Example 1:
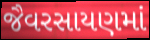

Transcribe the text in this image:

જૈવરસાયણમાં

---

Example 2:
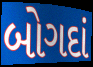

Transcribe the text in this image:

બોગદાં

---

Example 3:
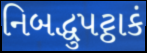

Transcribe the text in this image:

નિબદ્ધુપટ્ઠાકં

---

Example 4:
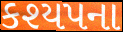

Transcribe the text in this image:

કશ્યપના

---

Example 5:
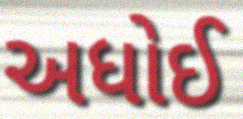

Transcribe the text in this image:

અધોઈ